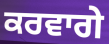
ਕਰਵਾਗੇ